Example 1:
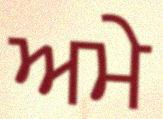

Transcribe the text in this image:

ਅਮੇ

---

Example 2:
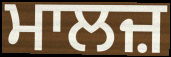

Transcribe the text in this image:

ਮਾਲਜ਼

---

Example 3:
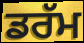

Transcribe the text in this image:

ਡਰੱਮ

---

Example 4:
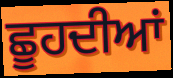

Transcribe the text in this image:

ਛੂਹਦੀਆਂ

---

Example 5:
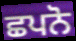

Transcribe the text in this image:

ਛਪਨੋ